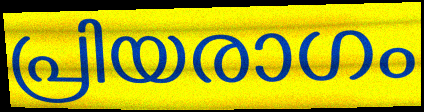
പ്രിയരാഗം